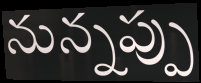
నున్నప్పు